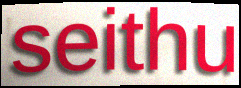
seithu